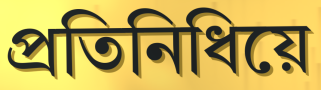
প্ৰতিনিধিয়ে